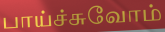
பாய்ச்சுவோம்